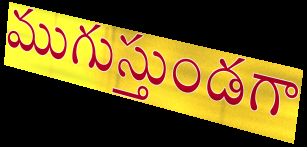
ముగుస్తుండగా